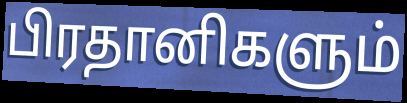
பிரதானிகளும்